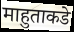
माहुताकडे